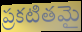
ప్రకటితమై